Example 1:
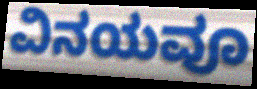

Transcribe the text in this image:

ವಿನಯವೂ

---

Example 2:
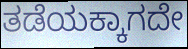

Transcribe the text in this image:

ತಡೆಯಕ್ಕಾಗದೇ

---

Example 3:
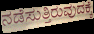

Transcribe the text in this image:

ನಡೆಸುತ್ತಿರುವುದಕ್ಕೆ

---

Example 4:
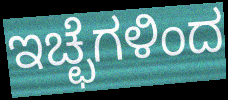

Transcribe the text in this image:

ಇಚ್ಛೆಗಳಿಂದ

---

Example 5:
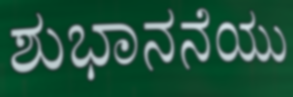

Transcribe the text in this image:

ಶುಭಾನನೆಯು